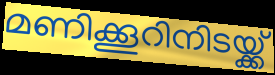
മണിക്കൂറിനിടയ്ക്ക്